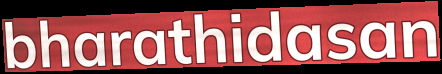
bharathidasan